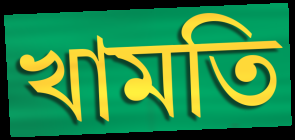
খামতি